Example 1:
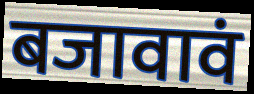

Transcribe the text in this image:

बजावावं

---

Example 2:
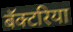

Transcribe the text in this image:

बॅक्टरिया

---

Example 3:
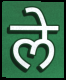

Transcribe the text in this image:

ले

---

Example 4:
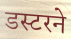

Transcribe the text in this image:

डस्टरने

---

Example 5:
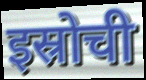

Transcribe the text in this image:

इस्रोची